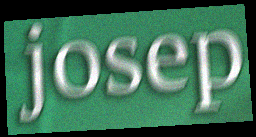
josep